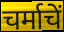
चर्माचें